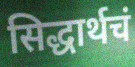
सिद्धार्थचं